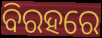
ବିରହରେ